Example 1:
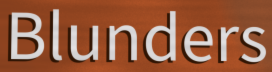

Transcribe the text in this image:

Blunders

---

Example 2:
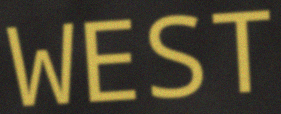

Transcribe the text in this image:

WEST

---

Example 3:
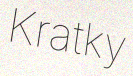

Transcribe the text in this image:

Kratky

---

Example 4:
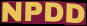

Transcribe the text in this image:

NPDD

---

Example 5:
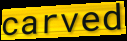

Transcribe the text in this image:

carved